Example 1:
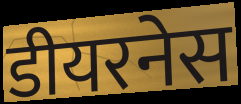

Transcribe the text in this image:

डीयरनेस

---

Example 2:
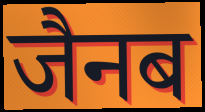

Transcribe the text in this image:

जैनब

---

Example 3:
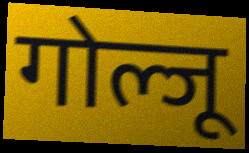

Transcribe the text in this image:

गोल्जू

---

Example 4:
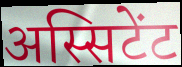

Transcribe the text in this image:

अस्सिटेंट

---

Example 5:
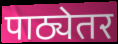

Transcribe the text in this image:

पाठ्येतर